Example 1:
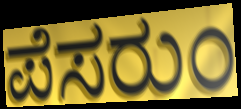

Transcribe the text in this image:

ಪೆಸರುಂ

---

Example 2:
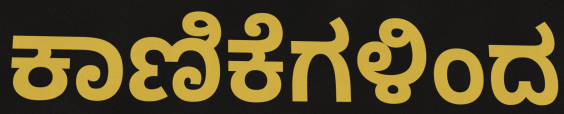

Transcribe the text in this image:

ಕಾಣಿಕೆಗಳಿಂದ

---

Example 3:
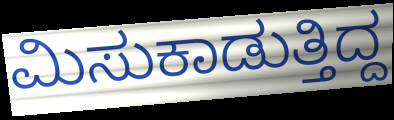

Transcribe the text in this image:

ಮಿಸುಕಾಡುತ್ತಿದ್ದ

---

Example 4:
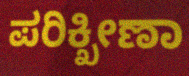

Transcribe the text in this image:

ಪರಿಕ್ಖೀಣಾ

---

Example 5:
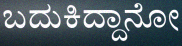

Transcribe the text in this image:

ಬದುಕಿದ್ದಾನೋ